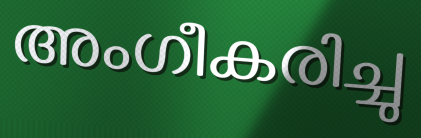
അംഗീകരിച്ചു